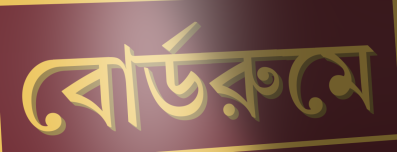
বোর্ডরুমে